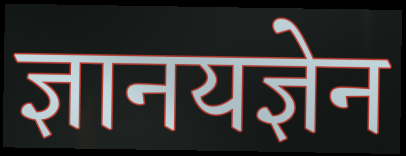
ज्ञानयज्ञेन